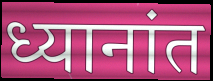
ध्यानांत